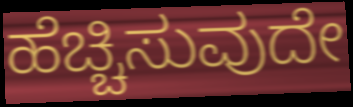
ಹೆಚ್ಚಿಸುವುದೇ